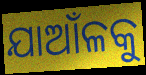
ଯାଆଁଳକୁ